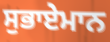
ਸੁਭਾਏਮਾਨ